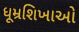
ધૂમ્રશિખાઓ